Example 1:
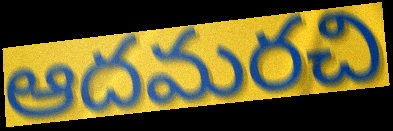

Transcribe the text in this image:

ఆదమరచి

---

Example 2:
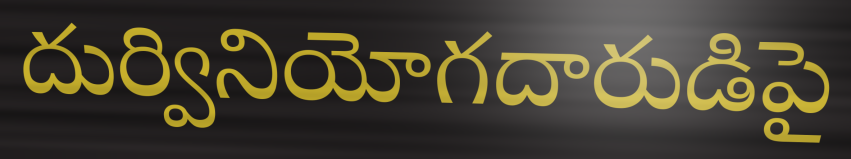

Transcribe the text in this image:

దుర్వినియోగదారుడిపై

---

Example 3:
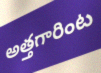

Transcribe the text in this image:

అత్తగారింట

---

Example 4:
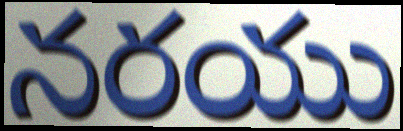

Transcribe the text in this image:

నరయు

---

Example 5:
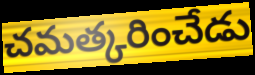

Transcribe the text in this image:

చమత్కరించేడు